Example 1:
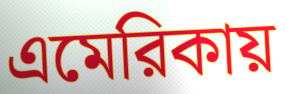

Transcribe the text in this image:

এমেরিকায়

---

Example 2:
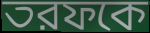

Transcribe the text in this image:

তরফকে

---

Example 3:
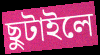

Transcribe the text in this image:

ছুটাইলে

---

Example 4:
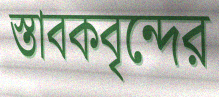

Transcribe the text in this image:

স্তাবকবৃন্দের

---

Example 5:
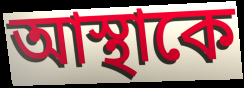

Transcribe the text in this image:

আস্থাকে